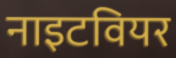
नाइटवियर